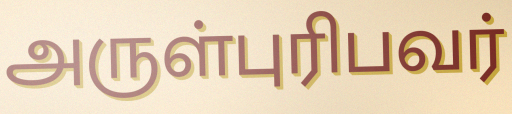
அருள்புரிபவர்